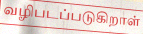
வழிபடப்படுகிறாள்